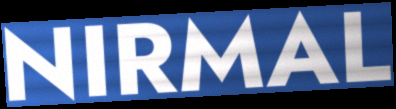
NIRMAL